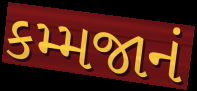
કમ્મજાનં